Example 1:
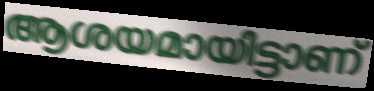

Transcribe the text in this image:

ആശയമായിട്ടാണ്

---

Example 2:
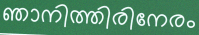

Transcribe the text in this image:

ഞാനിത്തിരിനേരം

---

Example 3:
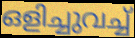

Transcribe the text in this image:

ഒളിച്ചുവച്ച്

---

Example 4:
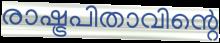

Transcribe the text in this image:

രാഷ്ട്രപിതാവിന്റെ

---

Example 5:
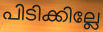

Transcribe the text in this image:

പിടിക്കില്ലേ